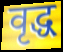
वृद्ध